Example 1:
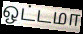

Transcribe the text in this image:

ஒட்டமா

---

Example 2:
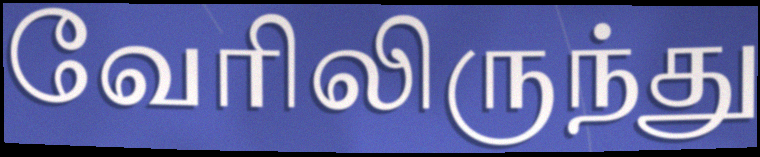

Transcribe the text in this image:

வேரிலிருந்து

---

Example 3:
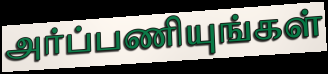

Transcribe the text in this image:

அர்ப்பணியுங்கள்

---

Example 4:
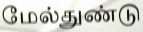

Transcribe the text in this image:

மேல்துண்டு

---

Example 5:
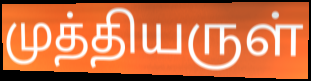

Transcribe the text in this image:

முத்தியருள்